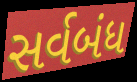
સર્વબંધ